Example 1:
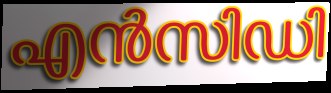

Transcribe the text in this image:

എൻസിഡി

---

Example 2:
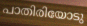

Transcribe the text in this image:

പാതിരിയോടു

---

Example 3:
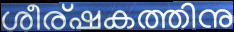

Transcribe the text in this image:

ശീര്ഷകത്തിനു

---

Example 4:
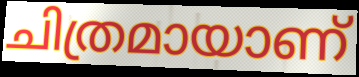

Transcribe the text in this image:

ചിത്രമായാണ്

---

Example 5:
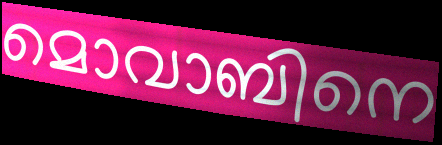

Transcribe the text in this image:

മൊവാബിനെ